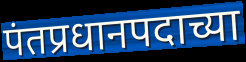
पंतप्रधानपदाच्या